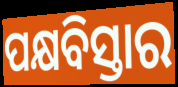
ପକ୍ଷବିସ୍ତାର